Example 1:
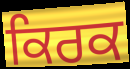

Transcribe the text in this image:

ਕਿਰਕ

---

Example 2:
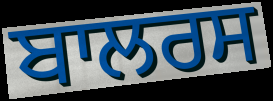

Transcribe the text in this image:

ਬਾਲਰਸ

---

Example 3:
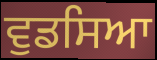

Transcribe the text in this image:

ਵੁਡਸਿਆ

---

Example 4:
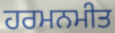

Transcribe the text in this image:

ਹਰਮਨਮੀਤ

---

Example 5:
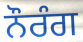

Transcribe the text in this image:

ਨੌਰੰਗ